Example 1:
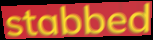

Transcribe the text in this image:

stabbed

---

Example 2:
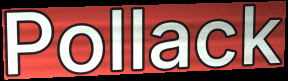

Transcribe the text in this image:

Pollack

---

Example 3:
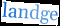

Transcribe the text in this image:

landge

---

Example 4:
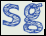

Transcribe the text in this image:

sg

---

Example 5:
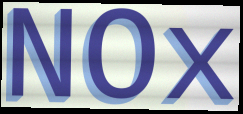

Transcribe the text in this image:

NOx